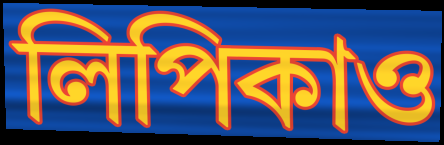
লিপিকাও